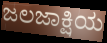
ಜಲಜಾಕ್ಷಿಯ